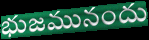
భుజమునందు